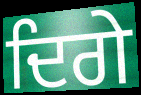
ਦਿਗੇ